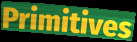
Primitives